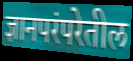
ज्ञानपरंपरेतील